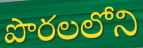
పొరలలోని